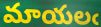
మాయలఁ